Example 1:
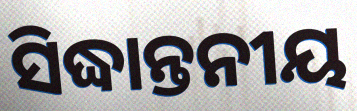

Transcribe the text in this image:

ସିଦ୍ଧାନ୍ତନୀୟ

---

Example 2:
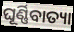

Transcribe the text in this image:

ଘୂର୍ଣ୍ଣିବାତ୍ୟା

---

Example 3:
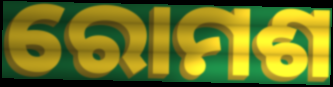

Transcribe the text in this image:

ରୋମଶ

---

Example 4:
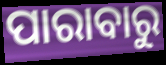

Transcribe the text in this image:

ପାରାବାରୁ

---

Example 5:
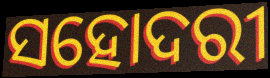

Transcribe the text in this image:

ସହୋଦରୀ